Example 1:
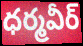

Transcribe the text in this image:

ధర్మవీర్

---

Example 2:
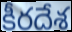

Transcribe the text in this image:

కీరదేశ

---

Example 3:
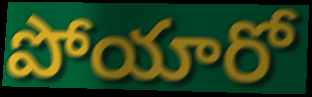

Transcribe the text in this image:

పోయారో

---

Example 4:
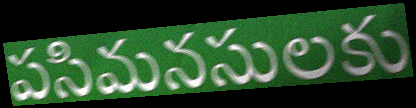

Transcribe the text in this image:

పసిమనసులకు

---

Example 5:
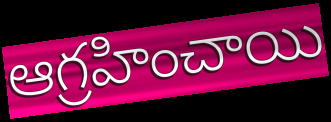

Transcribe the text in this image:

ఆగ్రహించాయి